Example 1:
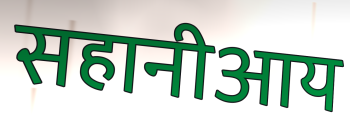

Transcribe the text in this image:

सहानीआय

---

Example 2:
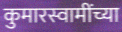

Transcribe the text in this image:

कुमारस्वामींच्या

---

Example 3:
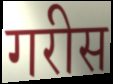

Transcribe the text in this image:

गरीस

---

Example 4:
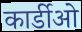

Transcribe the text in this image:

कार्डीओ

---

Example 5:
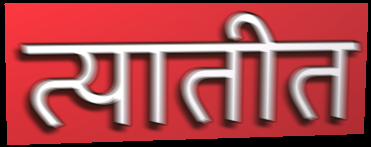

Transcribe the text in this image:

त्यातीत